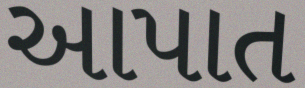
આપાત